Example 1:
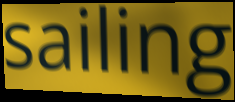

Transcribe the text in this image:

sailing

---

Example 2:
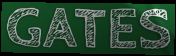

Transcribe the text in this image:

GATES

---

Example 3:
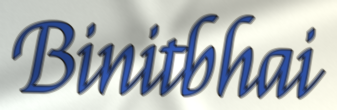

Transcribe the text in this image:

Binitbhai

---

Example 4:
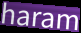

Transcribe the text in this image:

haram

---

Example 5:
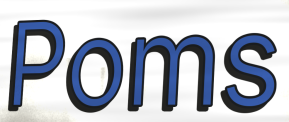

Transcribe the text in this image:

Poms